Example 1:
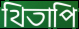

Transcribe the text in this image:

থিতাপি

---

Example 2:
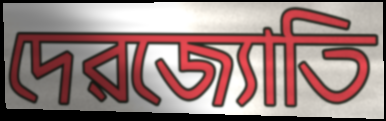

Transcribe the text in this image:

দেৱজ্যোতি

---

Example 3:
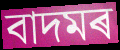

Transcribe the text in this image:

বাদমৰ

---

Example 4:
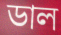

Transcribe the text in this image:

ডাল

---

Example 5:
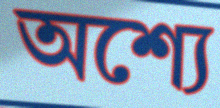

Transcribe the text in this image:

অশ্যে